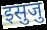
इसुजु